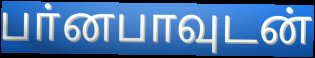
பர்னபாவுடன்